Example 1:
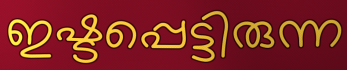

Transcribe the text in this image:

ഇഷ്ടപ്പെട്ടിരുന്ന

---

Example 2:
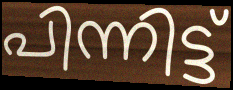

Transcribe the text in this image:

പിന്നിട്ട്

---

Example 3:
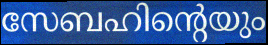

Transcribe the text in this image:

സേബഹിന്റെയും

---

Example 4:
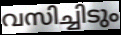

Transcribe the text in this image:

വസിച്ചിടും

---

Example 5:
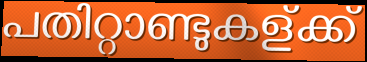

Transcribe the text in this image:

പതിറ്റാണ്ടുകള്ക്ക്